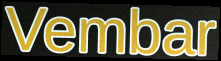
Vembar